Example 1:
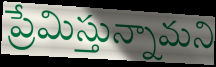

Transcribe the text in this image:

ప్రేమిస్తున్నామని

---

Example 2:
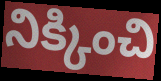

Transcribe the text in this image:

నిక్కించి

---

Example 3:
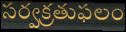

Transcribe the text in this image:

సర్వక్రతుఫలం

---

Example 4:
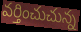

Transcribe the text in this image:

వర్తించుచున్న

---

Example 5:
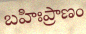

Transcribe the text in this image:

బహిఃప్రాణం